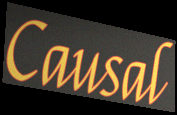
Causal